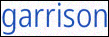
garrison